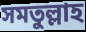
সমতুল্লাহ